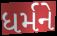
ધર્મને